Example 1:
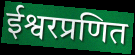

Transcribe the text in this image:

ईश्वरप्रणित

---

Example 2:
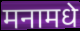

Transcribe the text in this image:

मनामधे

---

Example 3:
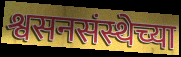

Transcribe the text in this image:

श्वसनसंस्थेच्या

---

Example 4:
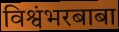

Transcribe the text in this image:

विश्वंभरबाबा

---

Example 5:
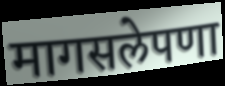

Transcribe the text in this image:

मागसलेपणा